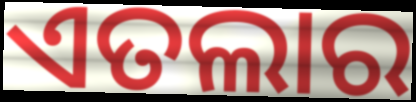
ଏତଲାର